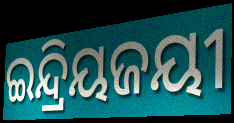
ଇନ୍ଦ୍ରିୟଜୟୀ